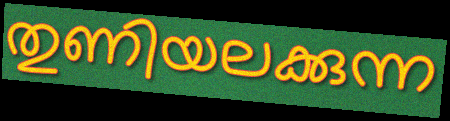
തുണിയലക്കുന്ന